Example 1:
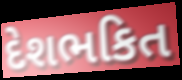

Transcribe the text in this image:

દેશભકિત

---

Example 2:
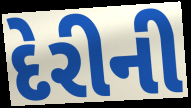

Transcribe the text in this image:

દેરીની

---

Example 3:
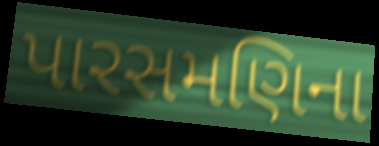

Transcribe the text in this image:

પારસમણિના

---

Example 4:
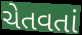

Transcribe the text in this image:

ચેતવતાં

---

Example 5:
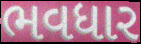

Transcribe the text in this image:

ભવધાર